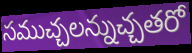
సముచ్చలన్నుచ్చతరో